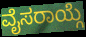
ವೈಸರಾಯ್ಗೆ